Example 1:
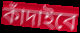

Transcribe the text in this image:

কাঁদাইবে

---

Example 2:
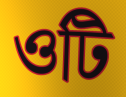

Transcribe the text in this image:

ওটি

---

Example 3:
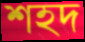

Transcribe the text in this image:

শহদ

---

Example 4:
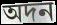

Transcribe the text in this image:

অদন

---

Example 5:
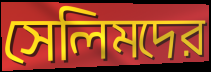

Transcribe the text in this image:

সেলিমদের